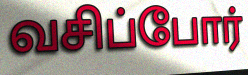
வசிப்போர்